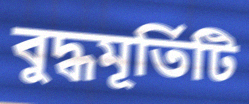
বুদ্ধমূর্তিটি